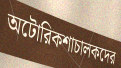
অটোরিকশাচালকদের